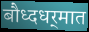
बौध्दधर्मात